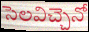
సెలవిచ్చెనో